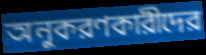
অনুকরণকারীদের